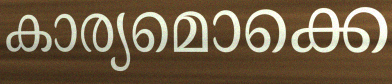
കാര്യമൊക്കെ